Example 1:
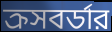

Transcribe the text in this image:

ক্রসবর্ডার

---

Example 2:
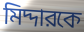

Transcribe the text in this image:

মিদ্দারকে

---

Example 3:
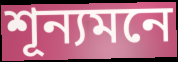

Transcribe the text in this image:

শূন্যমনে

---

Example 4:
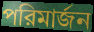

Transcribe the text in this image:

পরিমার্জন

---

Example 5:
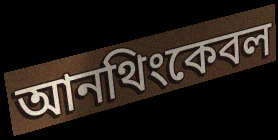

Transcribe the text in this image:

আনথিংকেবল